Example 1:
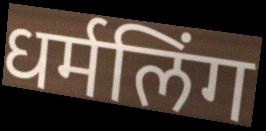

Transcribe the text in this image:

धर्मलिंग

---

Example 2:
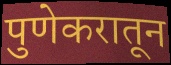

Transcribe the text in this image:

पुणेकरातून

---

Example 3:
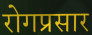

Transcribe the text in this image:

रोगप्रसार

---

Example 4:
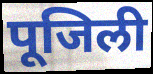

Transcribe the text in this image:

पूजिली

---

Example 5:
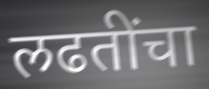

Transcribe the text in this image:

लढतींचा